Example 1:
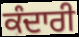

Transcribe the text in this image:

ਕੰਦਾਰੀ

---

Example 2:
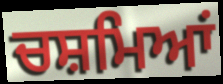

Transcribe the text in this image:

ਚਸ਼ਮਿਆਂ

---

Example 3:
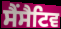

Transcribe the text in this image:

ਸੈਂਸੈਟਿਵ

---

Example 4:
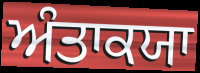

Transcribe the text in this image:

ਅੰਤਾਕਯਾ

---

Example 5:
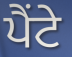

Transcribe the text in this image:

ਪੈਂਟੇ